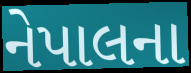
નેપાલના